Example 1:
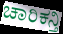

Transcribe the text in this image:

ಚಾರಿಕನ್ತಿ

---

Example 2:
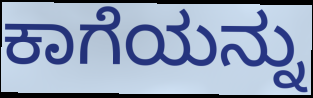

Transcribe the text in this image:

ಕಾಗೆಯನ್ನು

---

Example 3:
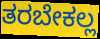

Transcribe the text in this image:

ತರಬೇಕಲ್ಲ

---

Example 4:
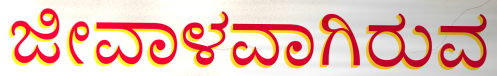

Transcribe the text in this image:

ಜೀವಾಳವಾಗಿರುವ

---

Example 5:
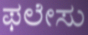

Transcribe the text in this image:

ಫಲೇಸು